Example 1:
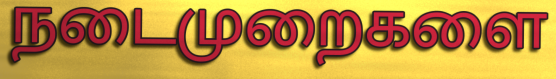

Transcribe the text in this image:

நடைமுறைகளை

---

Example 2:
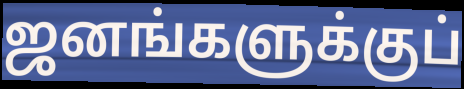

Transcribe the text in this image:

ஜனங்களுக்குப்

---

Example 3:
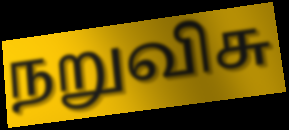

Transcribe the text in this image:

நறுவிசு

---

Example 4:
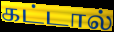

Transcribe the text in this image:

கட்டால்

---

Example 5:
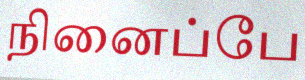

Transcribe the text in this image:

நினைப்பே